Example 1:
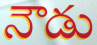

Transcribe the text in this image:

నౌడు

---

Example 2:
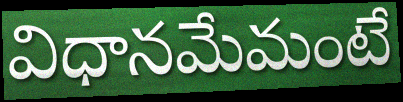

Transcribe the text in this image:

విధానమేమంటే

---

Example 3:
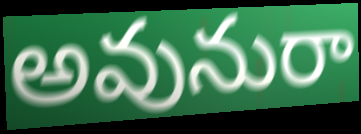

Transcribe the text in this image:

అవునురా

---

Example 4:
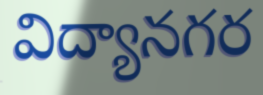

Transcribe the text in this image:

విద్యానగర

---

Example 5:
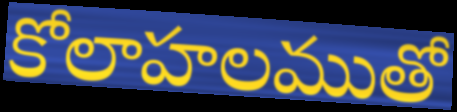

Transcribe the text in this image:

కోలాహలముతో